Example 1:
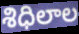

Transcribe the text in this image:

శిధిలాల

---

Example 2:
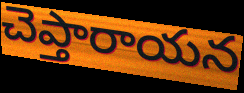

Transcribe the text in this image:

చెప్తారాయన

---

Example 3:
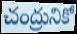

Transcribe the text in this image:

చంద్రునికో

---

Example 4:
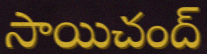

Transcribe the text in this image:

సాయిచంద్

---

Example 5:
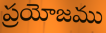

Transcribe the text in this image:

ప్రయోజము